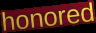
honored